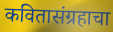
कवितासंग्रहाचा